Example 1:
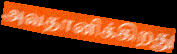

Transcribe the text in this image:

அவதானிக்கிறது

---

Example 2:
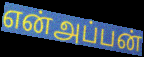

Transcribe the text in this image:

என்அப்பன்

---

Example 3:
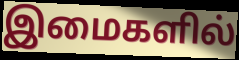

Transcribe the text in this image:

இமைகளில்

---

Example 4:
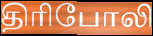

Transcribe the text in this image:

திரிபோலி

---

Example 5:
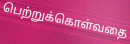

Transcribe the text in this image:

பெற்றுக்கொள்வதை